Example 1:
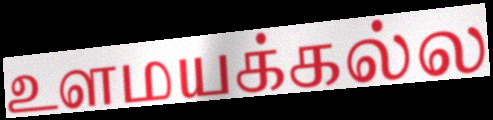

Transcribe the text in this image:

உளமயக்கல்ல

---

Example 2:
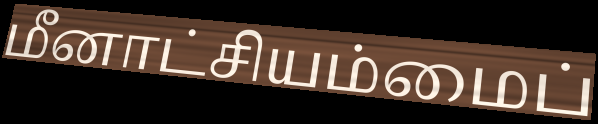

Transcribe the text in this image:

மீனாட்சியம்மைப்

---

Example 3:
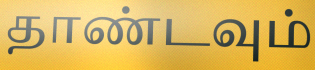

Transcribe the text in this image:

தாண்டவும்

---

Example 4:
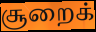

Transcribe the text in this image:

சூறைக்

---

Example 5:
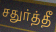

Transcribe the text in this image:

சதுர்த்தீ